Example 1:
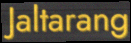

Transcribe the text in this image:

Jaltarang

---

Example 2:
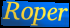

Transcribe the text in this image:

Roper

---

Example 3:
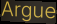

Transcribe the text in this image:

Argue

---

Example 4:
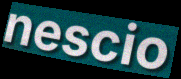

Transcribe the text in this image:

nescio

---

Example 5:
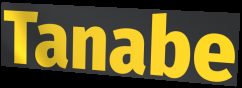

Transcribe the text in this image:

Tanabe